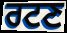
ਰਟਣ